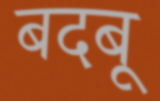
बदबू